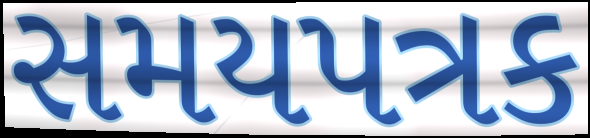
સમયપત્રક